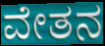
ವೇತನ